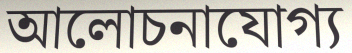
আলোচনাযোগ্য